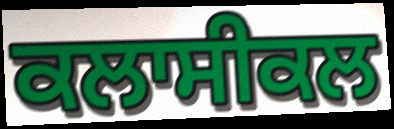
ਕਲਾਸੀਕਲ